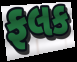
ફલક